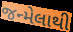
જન્મેલાથી